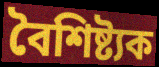
বৈশিষ্ট্যক